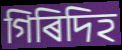
গিৰিদিহ